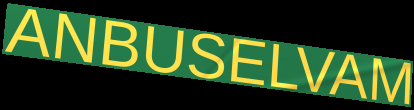
ANBUSELVAM